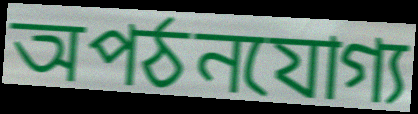
অপঠনযোগ্য